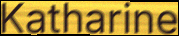
Katharine